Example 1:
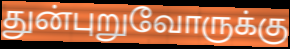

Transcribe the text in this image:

துன்புறுவோருக்கு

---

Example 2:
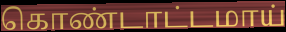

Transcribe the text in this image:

கொண்டாட்டமாய்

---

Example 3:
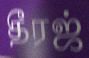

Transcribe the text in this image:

தீரஜ்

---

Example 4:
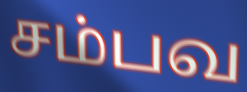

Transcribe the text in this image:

சம்பவ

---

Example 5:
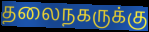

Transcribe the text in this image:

தலைநகருக்கு